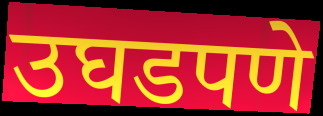
उघडपणे